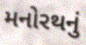
મનોરથનું